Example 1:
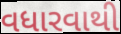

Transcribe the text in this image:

વધારવાથી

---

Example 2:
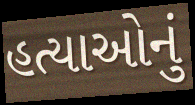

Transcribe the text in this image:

હત્યાઓનું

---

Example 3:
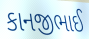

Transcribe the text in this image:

કાનજીભાઈ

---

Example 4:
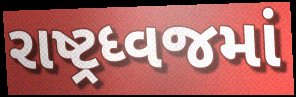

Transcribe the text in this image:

રાષ્ટ્રધ્વજમાં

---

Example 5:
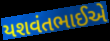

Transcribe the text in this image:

યશવંતભાઈએ